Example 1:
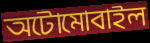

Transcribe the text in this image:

অটোমোবাইল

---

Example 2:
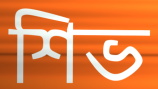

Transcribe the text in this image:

শিভ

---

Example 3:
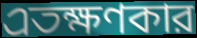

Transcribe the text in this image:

এতক্ষণকার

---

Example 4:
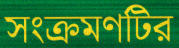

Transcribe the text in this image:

সংক্রমণটির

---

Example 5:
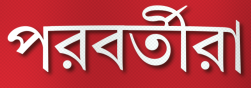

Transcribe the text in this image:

পরবর্তীরা